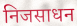
निजसाधन